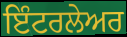
ਇੰਟਰਲੇਅਰ